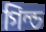
গিল্ড